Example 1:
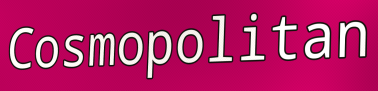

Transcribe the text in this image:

Cosmopolitan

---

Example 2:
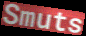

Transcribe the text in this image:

Smuts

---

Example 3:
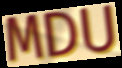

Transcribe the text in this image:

MDU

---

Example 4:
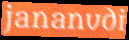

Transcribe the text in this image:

jananudi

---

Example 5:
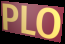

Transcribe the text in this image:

PLO